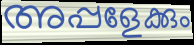
അപ്പളേക്കും